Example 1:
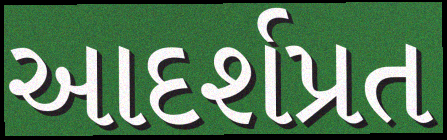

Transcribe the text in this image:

આદર્શપ્રત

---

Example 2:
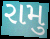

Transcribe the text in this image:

રામુ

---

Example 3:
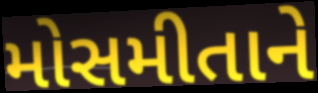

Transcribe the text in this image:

મોસમીતાને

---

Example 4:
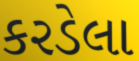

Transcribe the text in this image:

કરડેલા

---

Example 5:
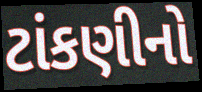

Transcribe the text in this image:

ટાંકણીનો